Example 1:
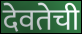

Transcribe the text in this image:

देवतेची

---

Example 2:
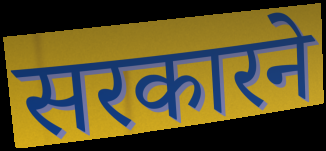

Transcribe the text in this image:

सरकारने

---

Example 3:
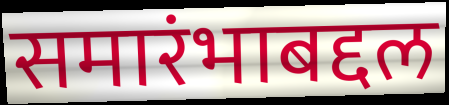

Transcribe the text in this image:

समारंभाबद्दल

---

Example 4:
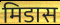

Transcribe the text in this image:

मिडास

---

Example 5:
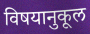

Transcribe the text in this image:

विषयानुकूल